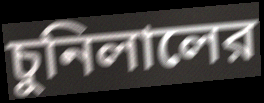
চুনিলালের